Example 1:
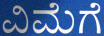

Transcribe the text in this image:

ವಿಮೆಗೆ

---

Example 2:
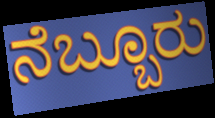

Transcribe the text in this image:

ನೆಬ್ಬೂರು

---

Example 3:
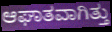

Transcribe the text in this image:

ಆಘಾತವಾಗಿತ್ತು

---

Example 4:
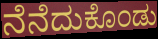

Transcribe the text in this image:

ನೆನೆದುಕೊಂಡು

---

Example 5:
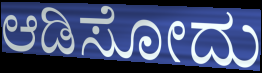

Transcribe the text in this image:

ಆಡಿಸೋದು